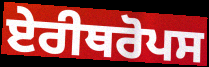
ਏਰੀਥਰੋਪਸ